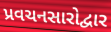
પ્રવચનસારોદ્વાર